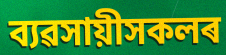
ব্যৱসায়ীসকলৰ